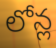
లోన్ల